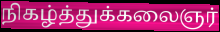
நிகழ்த்துக்கலைஞர்